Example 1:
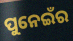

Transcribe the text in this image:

ପୁନେଇଁର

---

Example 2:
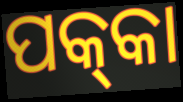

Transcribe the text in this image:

ପକ୍‌କା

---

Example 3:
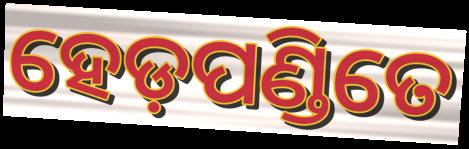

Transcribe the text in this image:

ହେଡ଼ପଣ୍ଡିତେ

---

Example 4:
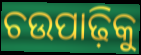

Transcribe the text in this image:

ଚଉପାଢ଼ିକୁ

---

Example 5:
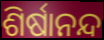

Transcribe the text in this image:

ଶିର୍ଷାନନ୍ଦ